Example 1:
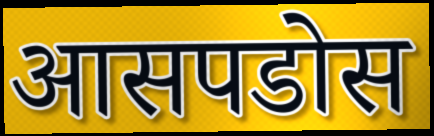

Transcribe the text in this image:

आसपडोस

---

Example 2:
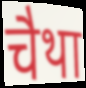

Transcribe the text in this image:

चैथा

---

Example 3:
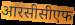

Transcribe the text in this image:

आरसीसीएफ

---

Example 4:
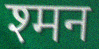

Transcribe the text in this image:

श्मन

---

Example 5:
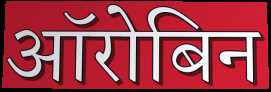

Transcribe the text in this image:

ऑरोबिन